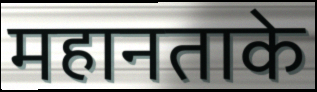
महानताके